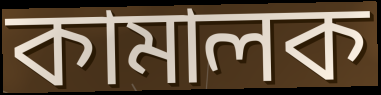
কামালক